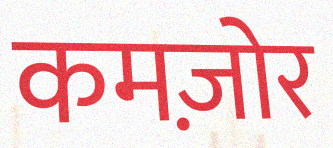
कमज़ोर